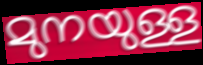
മുനയുള്ള